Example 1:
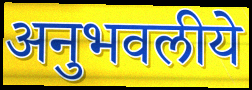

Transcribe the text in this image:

अनुभवलीये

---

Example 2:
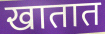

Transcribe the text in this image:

खातात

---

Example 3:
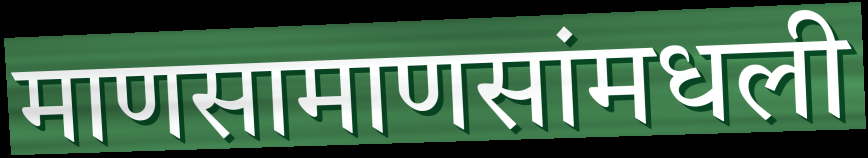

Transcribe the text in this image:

माणसामाणसांमधली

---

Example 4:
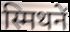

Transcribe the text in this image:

स्मिथनें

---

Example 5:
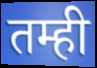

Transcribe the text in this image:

तम्ही